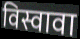
विस्वावा